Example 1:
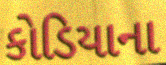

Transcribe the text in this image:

કોડિયાના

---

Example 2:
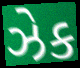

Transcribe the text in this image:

ઝેક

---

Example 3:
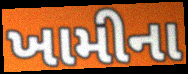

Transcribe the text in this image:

ખામીના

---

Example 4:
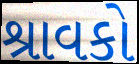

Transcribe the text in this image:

શ્રાવકો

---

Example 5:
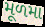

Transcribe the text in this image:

મૂળમા